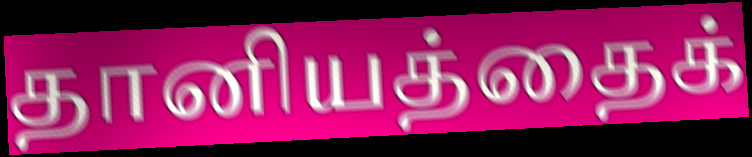
தானியத்தைக்